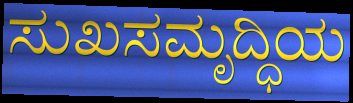
ಸುಖಸಮೃದ್ಧಿಯ